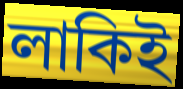
লাকিই